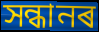
সন্ধানৰ